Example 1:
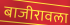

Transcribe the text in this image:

बाजीरावला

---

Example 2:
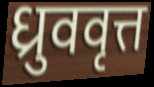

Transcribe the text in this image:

ध्रुववृत्त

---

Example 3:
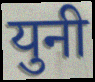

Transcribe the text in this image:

युनी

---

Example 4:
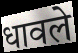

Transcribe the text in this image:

धावले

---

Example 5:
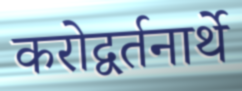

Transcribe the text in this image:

करोद्वर्तनार्थे